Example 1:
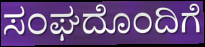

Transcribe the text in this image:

ಸಂಘದೊಂದಿಗೆ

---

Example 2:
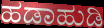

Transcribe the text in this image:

ಹಡಾಹುಡಿ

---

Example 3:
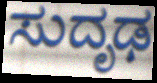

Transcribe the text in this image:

ಸುದೃಢ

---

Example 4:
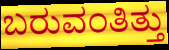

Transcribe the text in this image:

ಬರುವಂತಿತ್ತು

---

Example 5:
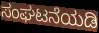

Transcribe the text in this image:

ಸಂಘಟನೆಯಡಿ